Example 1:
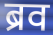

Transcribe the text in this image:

ब्रव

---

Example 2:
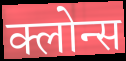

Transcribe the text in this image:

क्लोन्स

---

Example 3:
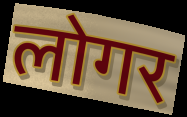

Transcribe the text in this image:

लोगर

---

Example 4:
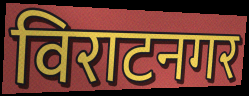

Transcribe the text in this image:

विराटनगर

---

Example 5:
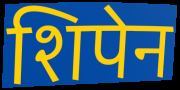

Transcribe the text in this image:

शिपेन